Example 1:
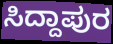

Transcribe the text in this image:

ಸಿದ್ದಾಪುರ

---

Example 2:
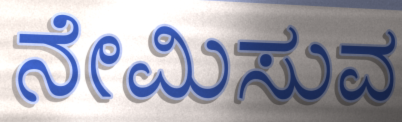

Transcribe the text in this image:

ನೇಮಿಸುವ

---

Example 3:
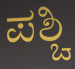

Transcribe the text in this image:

ಪಶ್ಚಿ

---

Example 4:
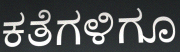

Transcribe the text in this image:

ಕತೆಗಳಿಗೂ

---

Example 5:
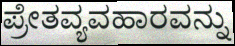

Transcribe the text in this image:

ಪ್ರೇತವ್ಯವಹಾರವನ್ನು